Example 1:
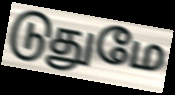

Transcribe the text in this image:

டுதுமே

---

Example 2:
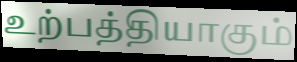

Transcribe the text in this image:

உற்பத்தியாகும்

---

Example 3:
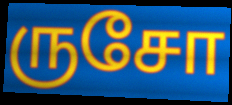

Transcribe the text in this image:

ருசோ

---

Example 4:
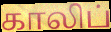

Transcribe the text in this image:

காலிப்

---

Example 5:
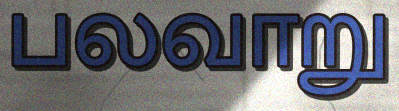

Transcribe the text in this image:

பலவாறு